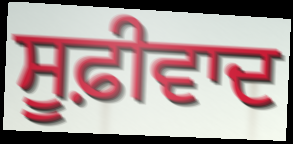
ਸੂਫ਼ੀਵਾਦ